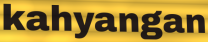
kahyangan